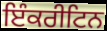
ਇੰਕਰੀਟਿਨ